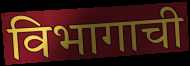
विभागाची